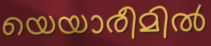
യെയാരീമിൽ